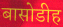
बासोडीह